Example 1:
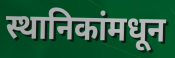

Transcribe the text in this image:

स्थानिकांमधून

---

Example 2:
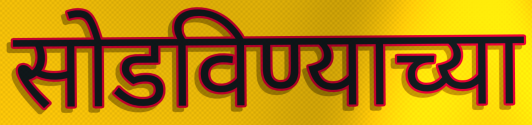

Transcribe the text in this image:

सोडविण्याच्या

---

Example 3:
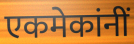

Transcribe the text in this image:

एकमेकांनीं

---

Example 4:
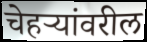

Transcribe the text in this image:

चेहऱ्यांवरील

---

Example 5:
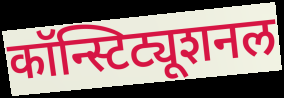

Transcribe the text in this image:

कॉन्स्टिट्यूशनल